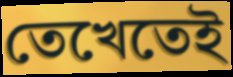
তেখেতেই